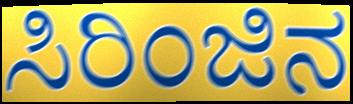
ಸಿರಿಂಜಿನ